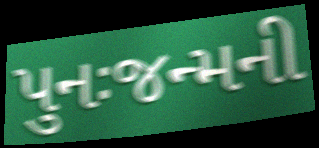
પુનઃજન્મની